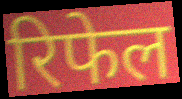
रिफेल